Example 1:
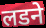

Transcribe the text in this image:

लडने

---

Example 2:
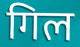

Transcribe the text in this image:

गिल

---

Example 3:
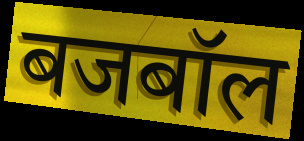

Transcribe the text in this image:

बजबॉल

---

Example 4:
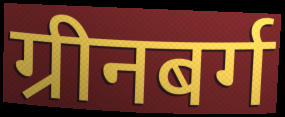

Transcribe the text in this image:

ग्रीनबर्ग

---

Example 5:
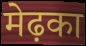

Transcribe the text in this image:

मेढ़का